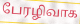
பேரழிவாக